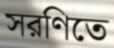
সরণিতে